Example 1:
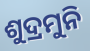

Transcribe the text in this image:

ଶୁଦ୍ରମୁନି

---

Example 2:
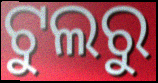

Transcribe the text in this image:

ଟୁଲରୁ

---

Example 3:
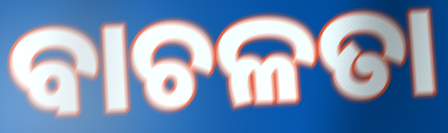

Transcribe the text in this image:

ବାଚଳତା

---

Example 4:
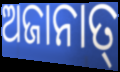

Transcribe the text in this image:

ଅଜାନାତ୍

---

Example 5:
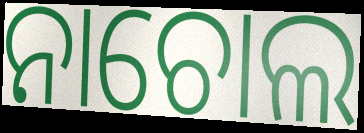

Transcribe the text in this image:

ନାଚୋଲ